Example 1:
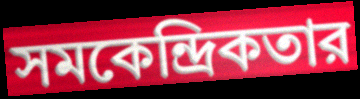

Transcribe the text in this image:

সমকেন্দ্রিকতার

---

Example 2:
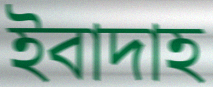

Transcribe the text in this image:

ইবাদাহ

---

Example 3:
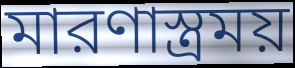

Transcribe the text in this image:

মারণাস্ত্রময়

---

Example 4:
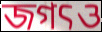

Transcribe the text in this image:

জগৎও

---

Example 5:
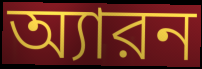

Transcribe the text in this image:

অ্যারন